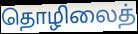
தொழிலைத்